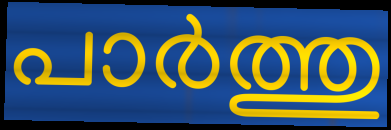
പാർത്തു